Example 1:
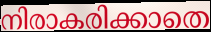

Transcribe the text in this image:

നിരാകരിക്കാതെ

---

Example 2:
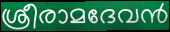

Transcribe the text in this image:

ശ്രീരാമദേവൻ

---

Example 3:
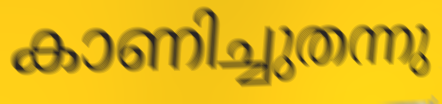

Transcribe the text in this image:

കാണിച്ചുതന്നു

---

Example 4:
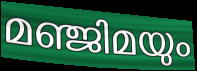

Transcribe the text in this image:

മഞ്ജിമയും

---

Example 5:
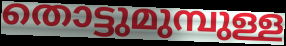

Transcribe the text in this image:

തൊട്ടുമുമ്പുള്ള